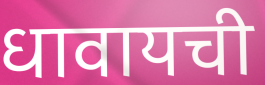
धावायची